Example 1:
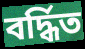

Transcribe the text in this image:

বৰ্দ্ধিত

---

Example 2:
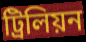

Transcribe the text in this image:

ট্ৰিলিয়ন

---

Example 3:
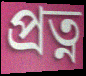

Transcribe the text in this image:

প্ৰত্ন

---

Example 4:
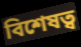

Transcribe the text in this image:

বিশেষত্ব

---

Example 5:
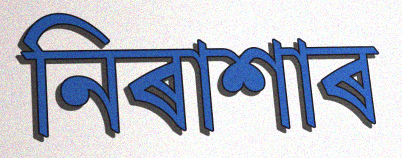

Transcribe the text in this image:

নিৰাশাৰ